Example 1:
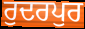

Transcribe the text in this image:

ਰੁਦਰਪੁਰ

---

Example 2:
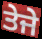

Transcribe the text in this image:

ਤੇਜੇ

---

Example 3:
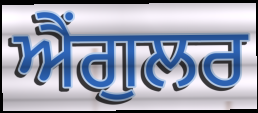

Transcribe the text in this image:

ਐਂਗੁਲਰ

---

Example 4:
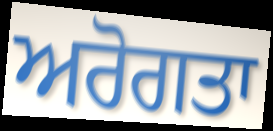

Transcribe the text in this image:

ਅਰੋਗਤਾ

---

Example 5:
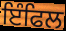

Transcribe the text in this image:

ਇੰਫਿਲ